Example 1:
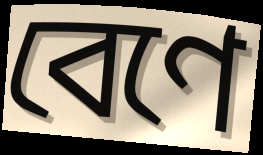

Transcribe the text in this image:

বেণে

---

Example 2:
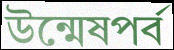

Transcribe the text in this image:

উন্মেষপর্ব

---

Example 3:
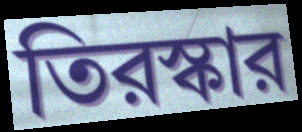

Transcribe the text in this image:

তিরস্কার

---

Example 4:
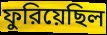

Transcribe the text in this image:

ফুরিয়েছিল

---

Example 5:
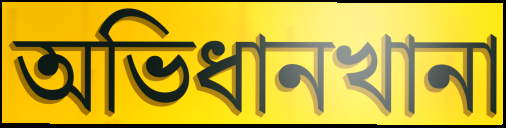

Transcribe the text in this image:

অভিধানখানা